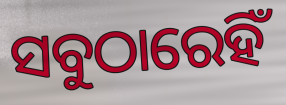
ସବୁଠାରେହିଁ